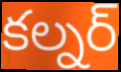
కల్నర్